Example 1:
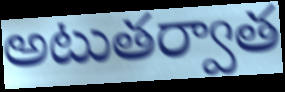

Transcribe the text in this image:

అటుతర్వాత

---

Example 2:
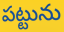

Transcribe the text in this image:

పట్టును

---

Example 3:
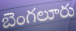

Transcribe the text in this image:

బెంగలూరు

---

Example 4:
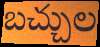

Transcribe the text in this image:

బచ్చుల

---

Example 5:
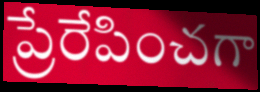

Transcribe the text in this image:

ప్రేరేపించగా